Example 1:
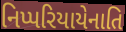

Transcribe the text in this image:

નિપ્પરિયાયેનાતિ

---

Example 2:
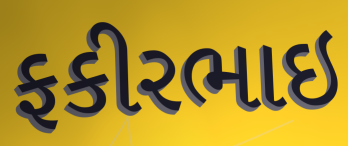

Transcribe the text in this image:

ફકીરભાઇ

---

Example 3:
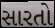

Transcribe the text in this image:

સારતો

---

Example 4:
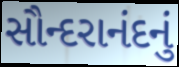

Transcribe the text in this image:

સૌન્દરાનંદનું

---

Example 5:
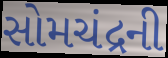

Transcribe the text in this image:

સોમચંદ્રની